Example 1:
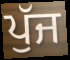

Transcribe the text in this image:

ਪੁੱਜ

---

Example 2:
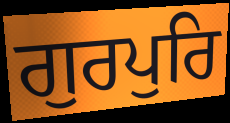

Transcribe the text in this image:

ਗੁਰਪੁਰਿ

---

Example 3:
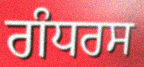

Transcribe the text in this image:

ਗੰਧਰਸ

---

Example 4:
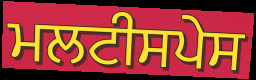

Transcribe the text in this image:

ਮਲਟੀਸਪੇਸ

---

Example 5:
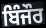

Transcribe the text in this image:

ਬਿੰਜੌਰ